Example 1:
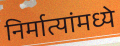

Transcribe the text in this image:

निर्मात्यांमध्ये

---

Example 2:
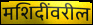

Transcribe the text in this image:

मशिदींवरील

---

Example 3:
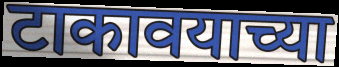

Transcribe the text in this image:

टाकावयाच्या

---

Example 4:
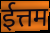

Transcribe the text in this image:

ईत्तम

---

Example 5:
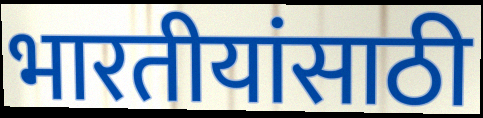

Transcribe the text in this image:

भारतीयांसाठी